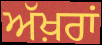
ਅੱਖ਼ਰਾਂ